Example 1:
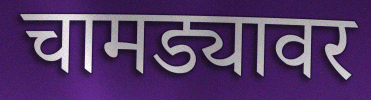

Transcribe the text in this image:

चामड्यावर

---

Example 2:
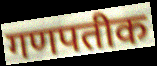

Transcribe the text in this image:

गणपतीक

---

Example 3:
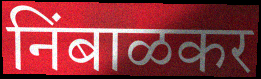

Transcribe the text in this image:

निंबाळकर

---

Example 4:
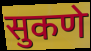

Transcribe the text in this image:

सुकणे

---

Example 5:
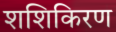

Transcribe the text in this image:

शशिकिरण